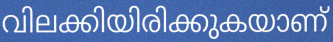
വിലക്കിയിരിക്കുകയാണ്